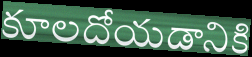
కూలదోయడానికి